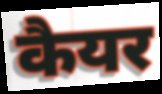
कैयर